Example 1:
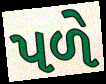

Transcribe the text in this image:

પળે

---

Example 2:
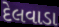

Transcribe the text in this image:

દેલવાડા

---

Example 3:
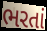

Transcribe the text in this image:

ભરતાં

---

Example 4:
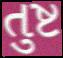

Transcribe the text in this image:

તુષ્ટ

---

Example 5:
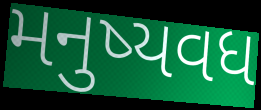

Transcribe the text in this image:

મનુષ્યવધ